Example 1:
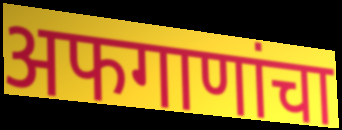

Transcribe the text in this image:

अफगाणांचा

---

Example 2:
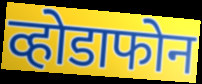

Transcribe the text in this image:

व्होडाफोन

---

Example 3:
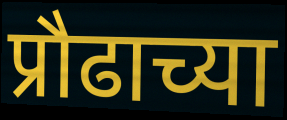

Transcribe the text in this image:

प्रौढाच्या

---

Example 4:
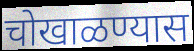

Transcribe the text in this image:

चोखाळण्यास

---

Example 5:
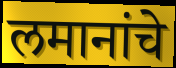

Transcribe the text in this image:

लमानांचे